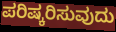
ಪರಿಷ್ಕರಿಸುವುದು